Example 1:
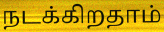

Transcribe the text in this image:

நடக்கிறதாம்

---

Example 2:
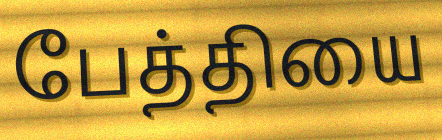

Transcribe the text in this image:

பேத்தியை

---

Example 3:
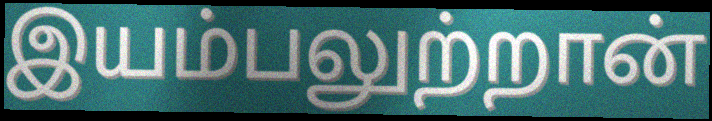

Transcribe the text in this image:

இயம்பலுற்றான்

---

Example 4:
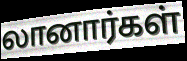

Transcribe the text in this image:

லானார்கள்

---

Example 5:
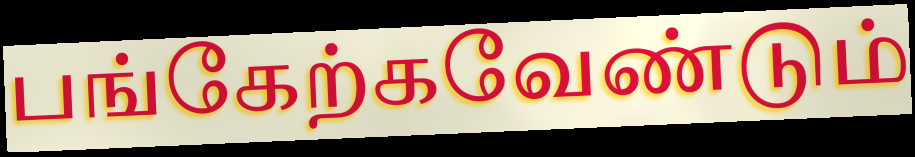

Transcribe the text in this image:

பங்கேற்கவேண்டும்